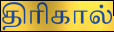
திரிகால்